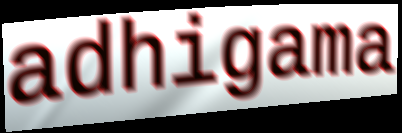
adhigama